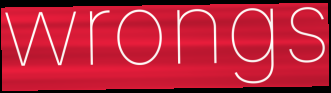
wrongs